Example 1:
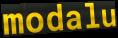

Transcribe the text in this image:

modalu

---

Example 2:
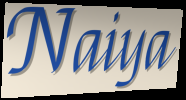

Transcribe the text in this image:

Naiya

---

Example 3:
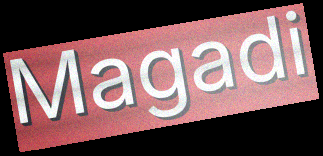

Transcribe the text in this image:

Magadi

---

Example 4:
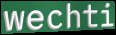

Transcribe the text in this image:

wechti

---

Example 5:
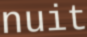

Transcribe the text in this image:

nuit